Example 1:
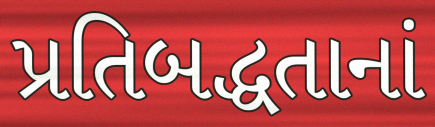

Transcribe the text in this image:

પ્રતિબદ્ધતાનાં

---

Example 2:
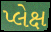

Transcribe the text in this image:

પ્લેક્ષ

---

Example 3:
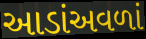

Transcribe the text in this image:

આડાંઅવળાં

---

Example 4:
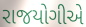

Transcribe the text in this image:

રાજયોગીએ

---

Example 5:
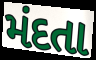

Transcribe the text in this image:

મંદતા